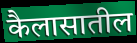
कैलासातील